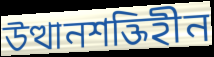
উত্থানশক্তিহীন